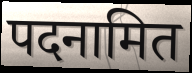
पदनामित